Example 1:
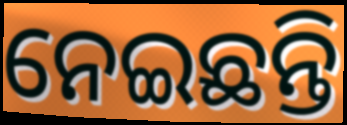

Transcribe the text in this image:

ନେଇଛନ୍ତି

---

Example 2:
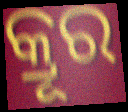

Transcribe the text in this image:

କ୍ରୂର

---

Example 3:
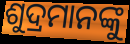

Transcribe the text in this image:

ଶୁଦ୍ରମାନଙ୍କୁ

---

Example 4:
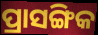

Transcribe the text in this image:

ପ୍ରାସଙ୍ଗିକ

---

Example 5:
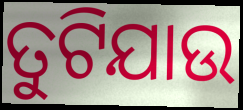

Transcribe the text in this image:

ତୁଟିଯାଉ